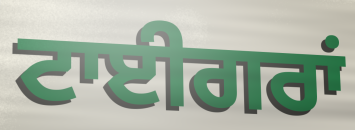
ਟਾਈਗਰਾਂ